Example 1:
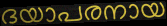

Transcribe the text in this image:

ദയാപരനായ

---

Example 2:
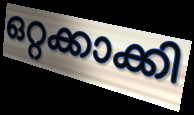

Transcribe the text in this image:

ഒറ്റക്കാക്കി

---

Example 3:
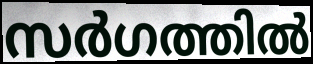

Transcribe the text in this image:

സർഗത്തിൽ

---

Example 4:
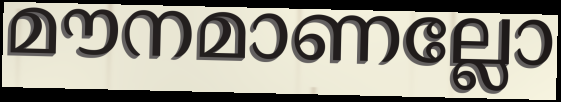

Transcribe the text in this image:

മൗനമാണല്ലോ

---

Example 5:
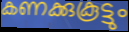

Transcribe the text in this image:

കണക്കുകൂട്ടും